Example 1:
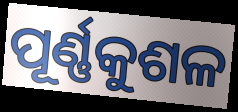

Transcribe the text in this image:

ପୂର୍ଣ୍ଣକୁଶଳ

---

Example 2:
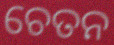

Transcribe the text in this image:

ଚେତନ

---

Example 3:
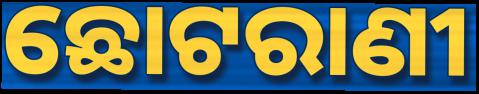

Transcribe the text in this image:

ଛୋଟରାଣୀ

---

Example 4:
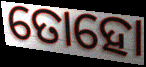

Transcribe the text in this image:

ତୋହୋ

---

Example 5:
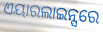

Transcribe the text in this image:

ଏୟାରଲାଇନ୍ସରେ